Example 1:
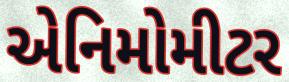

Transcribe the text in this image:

એનિમોમીટર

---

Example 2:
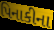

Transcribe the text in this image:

પિનાકીના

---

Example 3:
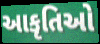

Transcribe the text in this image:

આકૃતિઓ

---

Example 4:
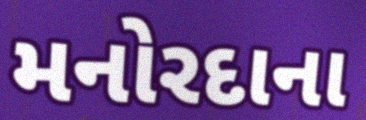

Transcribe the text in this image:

મનોરદાના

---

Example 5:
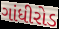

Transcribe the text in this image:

ગાંધીરોડ